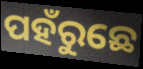
ପହଁରୁଛେ